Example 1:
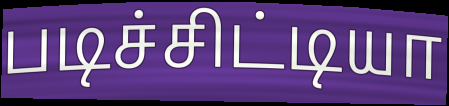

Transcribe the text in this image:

படிச்சிட்டியா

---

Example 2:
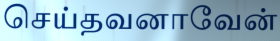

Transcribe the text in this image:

செய்தவனாவேன்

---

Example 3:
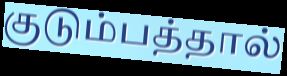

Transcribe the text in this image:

குடும்பத்தால்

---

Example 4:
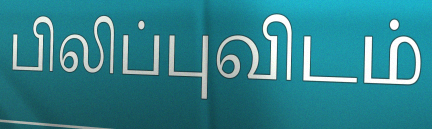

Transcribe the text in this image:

பிலிப்புவிடம்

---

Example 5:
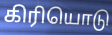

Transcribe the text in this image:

கிரியொடு